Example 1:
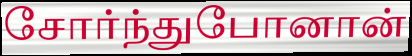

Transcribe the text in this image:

சோர்ந்துபோனான்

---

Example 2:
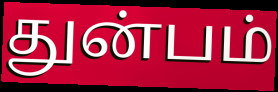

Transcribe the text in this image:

துன்பம்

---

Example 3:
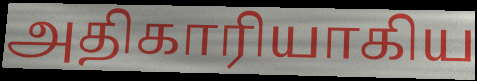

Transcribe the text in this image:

அதிகாரியாகிய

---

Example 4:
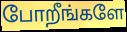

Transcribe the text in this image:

போறீங்களே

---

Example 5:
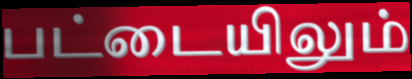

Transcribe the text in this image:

பட்டையிலும்